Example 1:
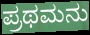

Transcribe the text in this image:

ಪ್ರಥಮನು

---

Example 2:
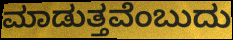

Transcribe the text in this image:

ಮಾಡುತ್ತವೆಂಬುದು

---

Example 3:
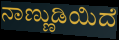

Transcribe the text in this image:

ನಾಣ್ಣುಡಿಯಿದೆ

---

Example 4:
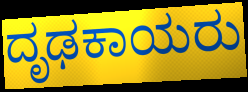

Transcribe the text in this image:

ದೃಢಕಾಯರು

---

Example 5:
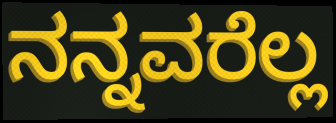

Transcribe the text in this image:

ನನ್ನವರೆಲ್ಲ